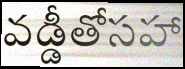
వడ్డీతోసహా